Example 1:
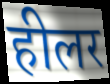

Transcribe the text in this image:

हीलर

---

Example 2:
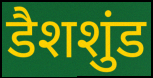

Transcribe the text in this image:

डैशशुंड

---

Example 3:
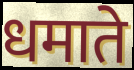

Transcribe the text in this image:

धमाते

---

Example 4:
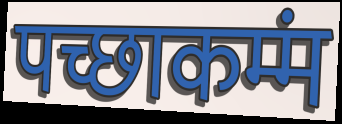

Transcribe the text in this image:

पच्छाकम्मं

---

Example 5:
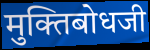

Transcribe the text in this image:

मुक्तिबोधजी